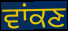
ਵਾਂਕਣ